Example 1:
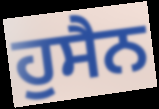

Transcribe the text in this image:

ਹੁਸੈਨ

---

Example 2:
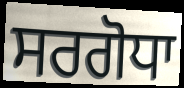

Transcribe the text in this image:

ਸਰਗੋਧਾ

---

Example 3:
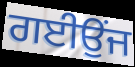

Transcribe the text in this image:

ਗਈਉਂਜ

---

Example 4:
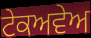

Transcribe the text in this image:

ਟੇਕਅਵੇਅ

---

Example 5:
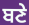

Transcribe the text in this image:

ਬਣੇ